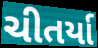
ચીતર્યા